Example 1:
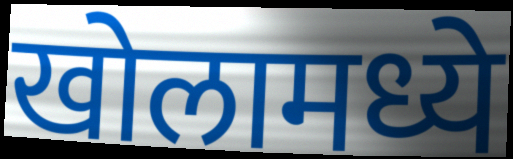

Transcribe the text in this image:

खोलामध्ये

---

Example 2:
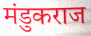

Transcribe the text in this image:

मंडुकराज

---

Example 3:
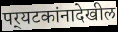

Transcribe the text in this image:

पर्यटकांनादेखील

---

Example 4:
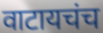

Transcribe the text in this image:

वाटायचंच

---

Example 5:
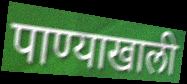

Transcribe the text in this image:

पाण्याखाली